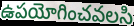
ఉపయోగించవలసి